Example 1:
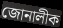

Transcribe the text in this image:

জোনালীক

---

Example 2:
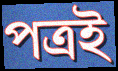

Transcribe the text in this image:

পত্ৰই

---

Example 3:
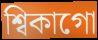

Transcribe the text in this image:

শ্বিকাগো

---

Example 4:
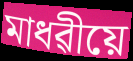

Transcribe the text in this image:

মাধৱীয়ে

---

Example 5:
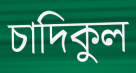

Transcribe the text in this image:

চাদিকুল